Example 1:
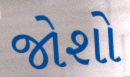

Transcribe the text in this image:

જોશો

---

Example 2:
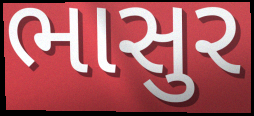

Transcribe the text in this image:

ભાસુર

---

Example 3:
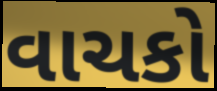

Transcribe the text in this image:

વાચકો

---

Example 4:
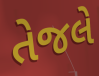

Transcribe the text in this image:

તેજલે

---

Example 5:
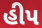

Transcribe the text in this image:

હીપ